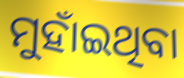
ମୁହାଁଇଥିବା